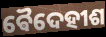
ଵୈଦେହୀଶ